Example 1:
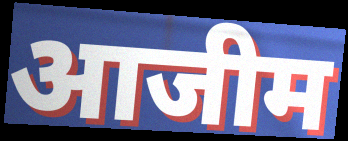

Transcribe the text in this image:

आजीम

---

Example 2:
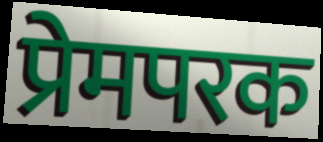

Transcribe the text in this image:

प्रेमपरक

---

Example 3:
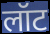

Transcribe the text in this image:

लॉट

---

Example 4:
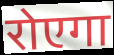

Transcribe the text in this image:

रोएगा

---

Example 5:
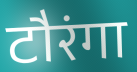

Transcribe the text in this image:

टौरंगा